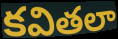
కవితలా